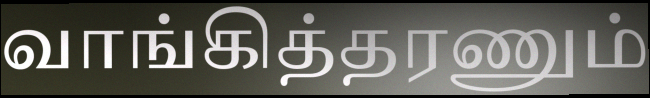
வாங்கித்தரணும்